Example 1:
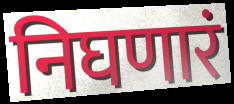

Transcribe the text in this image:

निघणारं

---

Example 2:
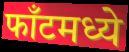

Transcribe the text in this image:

फाँटमध्ये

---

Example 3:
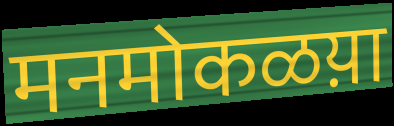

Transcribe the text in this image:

मनमोकळय़ा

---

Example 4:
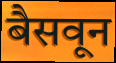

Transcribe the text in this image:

बैसवून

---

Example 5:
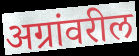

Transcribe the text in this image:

अग्रांवरील